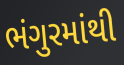
ભંગુરમાંથી